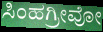
ಸಿಂಹಗ್ರೀವೋ